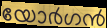
യോർഗൻ